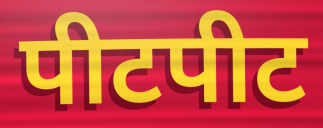
पीटपीट